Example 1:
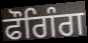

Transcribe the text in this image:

ਫੌਗਿੰਗ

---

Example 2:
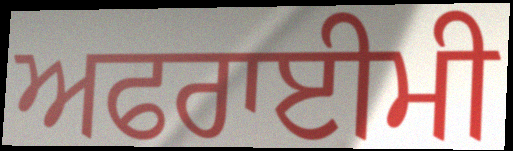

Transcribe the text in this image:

ਅਫਰਾਈਮੀ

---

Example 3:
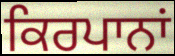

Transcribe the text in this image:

ਕਿਰਪਾਨਾਂ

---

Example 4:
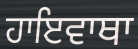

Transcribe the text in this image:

ਹਾਇਵਾਥਾ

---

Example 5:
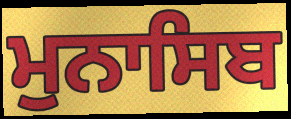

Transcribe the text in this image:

ਮੁਨਾਸਿਬ